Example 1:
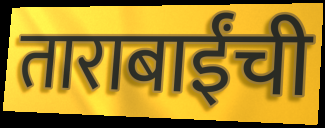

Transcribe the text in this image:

ताराबाईंची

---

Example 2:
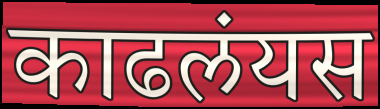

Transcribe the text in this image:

काढलंयस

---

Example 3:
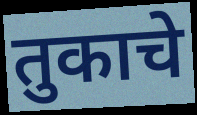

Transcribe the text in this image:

तुकाचे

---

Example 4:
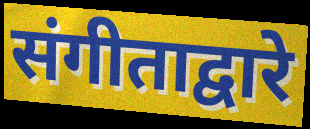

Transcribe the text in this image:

संगीताद्वारे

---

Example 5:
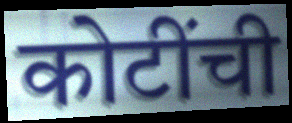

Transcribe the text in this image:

कोटींची